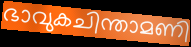
ഭാവുകചിന്താമണി